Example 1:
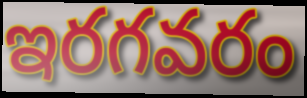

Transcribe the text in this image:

ఇరగవరం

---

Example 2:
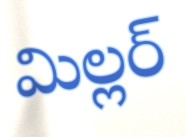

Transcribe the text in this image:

మిల్లర్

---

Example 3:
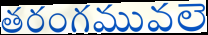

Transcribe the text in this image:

తరంగమువలె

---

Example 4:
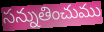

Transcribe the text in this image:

సన్నుతించుము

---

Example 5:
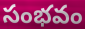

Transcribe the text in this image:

సంభవం